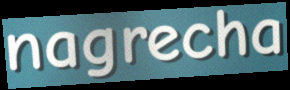
nagrecha